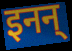
इनन्